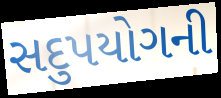
સદુપયોગની